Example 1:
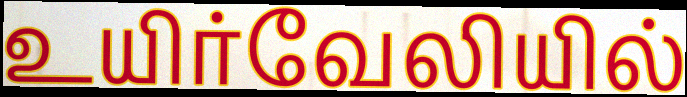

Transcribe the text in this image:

உயிர்வேலியில்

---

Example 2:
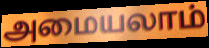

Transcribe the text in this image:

அமையலாம்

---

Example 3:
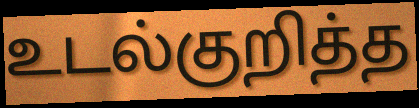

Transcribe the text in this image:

உடல்குறித்த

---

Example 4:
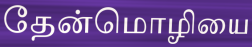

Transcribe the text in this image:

தேன்மொழியை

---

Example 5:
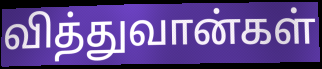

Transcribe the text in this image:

வித்துவான்கள்